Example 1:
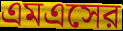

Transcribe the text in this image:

এমএসের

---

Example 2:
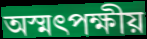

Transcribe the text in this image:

অস্মৎপক্ষীয়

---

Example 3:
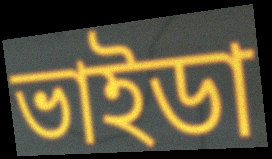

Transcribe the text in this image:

ভাইডা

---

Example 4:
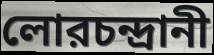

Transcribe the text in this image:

লোরচন্দ্রানী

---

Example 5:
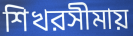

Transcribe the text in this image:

শিখরসীমায়